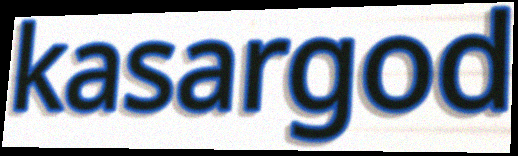
kasargod